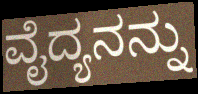
ವೈದ್ಯನನ್ನು